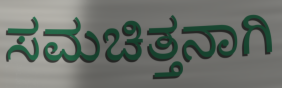
ಸಮಚಿತ್ತನಾಗಿ